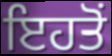
ਇਹਤੋਂ